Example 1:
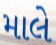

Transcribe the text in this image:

માલે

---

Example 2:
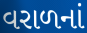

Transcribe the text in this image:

વરાળનાં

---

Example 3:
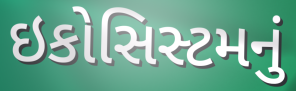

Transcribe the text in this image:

ઇકોસિસ્ટમનું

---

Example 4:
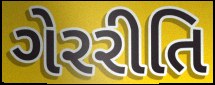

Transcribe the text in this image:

ગેરરીતિ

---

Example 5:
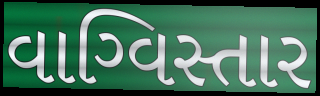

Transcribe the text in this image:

વાગ્વિસ્તાર